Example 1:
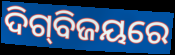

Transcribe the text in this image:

ଦିଗ୍‌ବିଜୟରେ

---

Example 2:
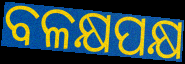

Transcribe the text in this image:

ବଳକ୍ଷପକ୍ଷ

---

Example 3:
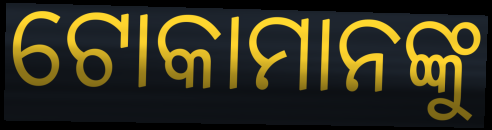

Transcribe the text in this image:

ଟୋକାମାନଙ୍କୁ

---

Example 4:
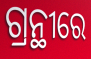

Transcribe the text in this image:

ଗ୍ରନ୍ଥୀରେ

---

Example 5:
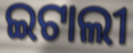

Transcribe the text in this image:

ଇଟାଲୀ